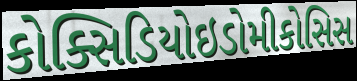
કોક્સિડિયોઇડોમીકોસિસ